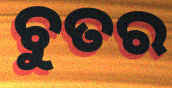
ଚୁତର